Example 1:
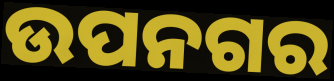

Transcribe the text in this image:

ଉପନଗର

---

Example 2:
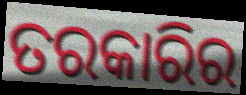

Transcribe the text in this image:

ତରକାରିର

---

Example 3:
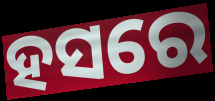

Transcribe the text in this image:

ହସରେ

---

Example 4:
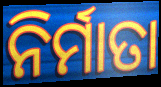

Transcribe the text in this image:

ନିର୍ମାତା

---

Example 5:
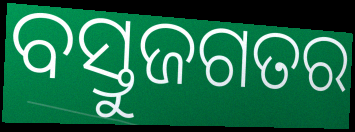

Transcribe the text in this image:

ବସ୍ତୁଜଗତର